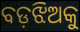
ବଡ଼ଝିଅକୁ